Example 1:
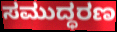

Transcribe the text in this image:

ಸಮುದ್ಧರಣ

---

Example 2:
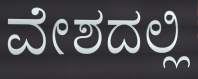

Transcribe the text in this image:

ವೇಶದಲ್ಲಿ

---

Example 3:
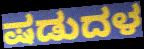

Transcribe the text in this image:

ಷಡುದಳ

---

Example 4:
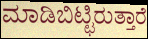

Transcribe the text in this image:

ಮಾಡಿಬಿಟ್ಟಿರುತ್ತಾರೆ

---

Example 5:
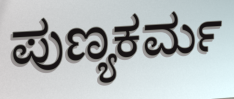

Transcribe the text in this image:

ಪುಣ್ಯಕರ್ಮ